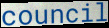
council